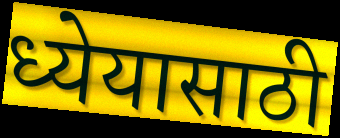
ध्येयासाठी